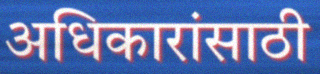
अधिकारांसाठी